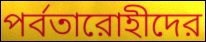
পর্বতারোহীদের